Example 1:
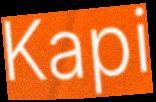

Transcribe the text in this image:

Kapi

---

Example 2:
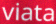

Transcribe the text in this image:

viata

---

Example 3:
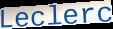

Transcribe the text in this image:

Leclerc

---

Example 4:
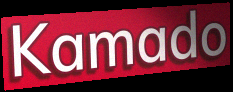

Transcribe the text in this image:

Kamado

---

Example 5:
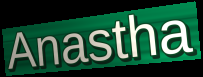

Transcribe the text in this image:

Anastha